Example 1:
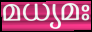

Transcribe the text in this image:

മധ്യമഃ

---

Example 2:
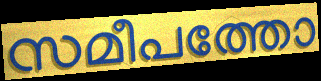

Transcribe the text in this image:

സമീപത്തോ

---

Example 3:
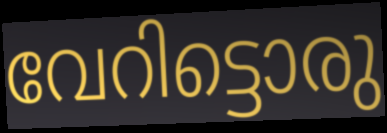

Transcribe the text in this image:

വേറിട്ടൊരു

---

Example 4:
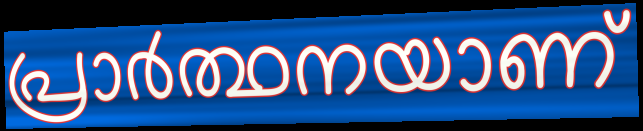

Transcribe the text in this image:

പ്രാർത്ഥനയാണ്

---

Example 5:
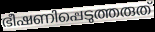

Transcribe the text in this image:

ഭീഷണിപ്പെടുത്തരുത്